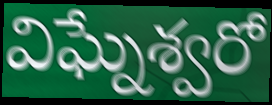
విఘ్నేశ్వరో